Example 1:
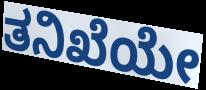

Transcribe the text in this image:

ತನಿಖೆಯೇ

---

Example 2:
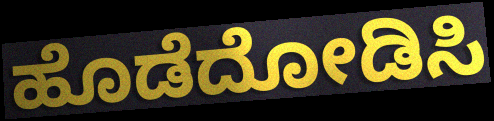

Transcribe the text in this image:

ಹೊಡೆದೋಡಿಸಿ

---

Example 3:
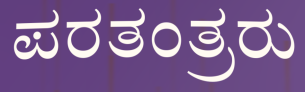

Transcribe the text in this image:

ಪರತಂತ್ರರು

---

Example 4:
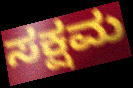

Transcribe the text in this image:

ಸಕ್ಷಮ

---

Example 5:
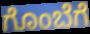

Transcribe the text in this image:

ಗೊಂಬೆಗೆ